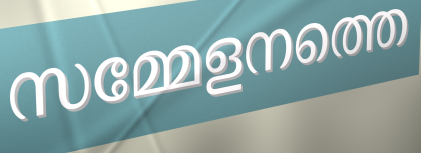
സമ്മേളനത്തെ